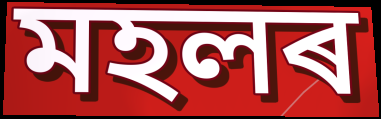
মহলৰ